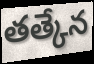
తత్కేన